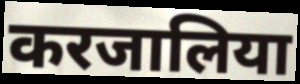
करजालिया